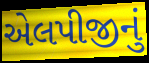
એલપીજીનું